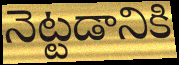
నెట్టడానికి